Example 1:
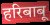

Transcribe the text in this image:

हरिबाबू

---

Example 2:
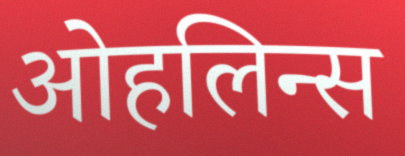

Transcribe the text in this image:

ओहलिन्स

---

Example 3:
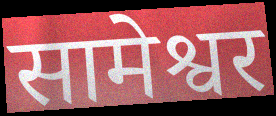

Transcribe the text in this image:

सामेश्वर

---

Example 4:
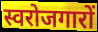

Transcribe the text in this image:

स्वरोजगारों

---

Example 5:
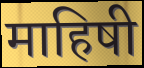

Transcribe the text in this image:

माहिषी